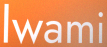
lwami